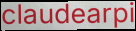
claudearpi